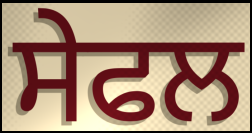
ਸੇਫਲ